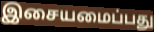
இசையமைப்பது